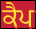
ਕੈਪ